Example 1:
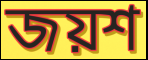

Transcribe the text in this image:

জয়শ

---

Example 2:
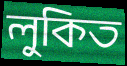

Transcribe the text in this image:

লুকিত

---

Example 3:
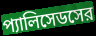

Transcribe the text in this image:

প্যালিসেডসের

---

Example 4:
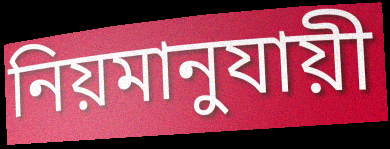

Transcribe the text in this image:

নিয়মানুযায়ী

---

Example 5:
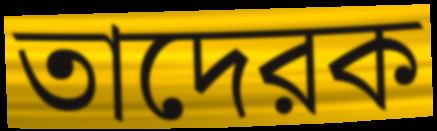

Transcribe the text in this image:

তাদেরক